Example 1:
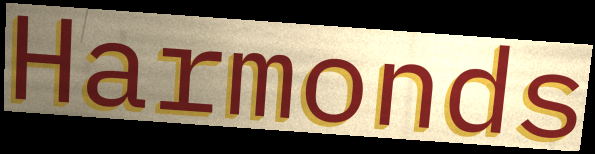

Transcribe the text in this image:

Harmonds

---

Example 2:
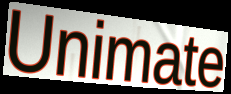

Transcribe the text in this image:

Unimate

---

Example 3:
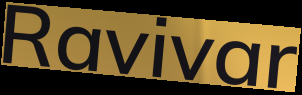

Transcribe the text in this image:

Ravivar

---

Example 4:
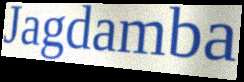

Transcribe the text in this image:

Jagdamba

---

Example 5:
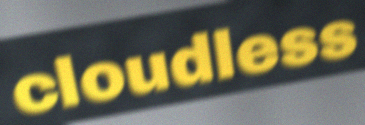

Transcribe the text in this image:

cloudless